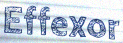
Effexor